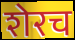
शेरच